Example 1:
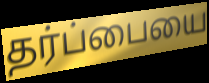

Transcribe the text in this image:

தர்ப்பையை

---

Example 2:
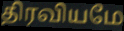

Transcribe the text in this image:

திரவியமே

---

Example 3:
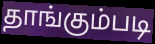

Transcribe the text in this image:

தாங்கும்படி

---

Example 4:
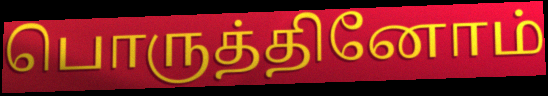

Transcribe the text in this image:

பொருத்தினோம்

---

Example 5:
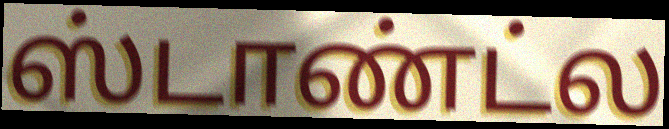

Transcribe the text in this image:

ஸ்டாண்ட்ல